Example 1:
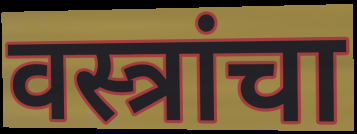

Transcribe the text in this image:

वस्त्रांचा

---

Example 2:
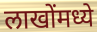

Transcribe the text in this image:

लाखोंमध्ये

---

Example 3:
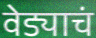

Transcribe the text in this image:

वेड्याचं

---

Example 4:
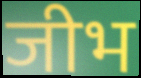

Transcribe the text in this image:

जीभ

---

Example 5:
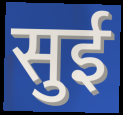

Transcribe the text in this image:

सुई